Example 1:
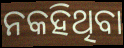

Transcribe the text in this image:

ନକହିଥିବା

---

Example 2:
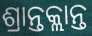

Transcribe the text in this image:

ଶ୍ରାନ୍ତକ୍ଲାନ୍ତ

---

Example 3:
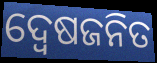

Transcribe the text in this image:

ଦ୍ଵେଷଜନିତ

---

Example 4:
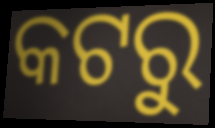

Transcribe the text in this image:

କଟରୁ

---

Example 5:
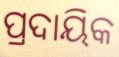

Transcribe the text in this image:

ପ୍ରଦାୟିକ